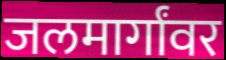
जलमार्गांवर